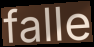
falle